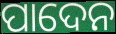
ପାଦେନ